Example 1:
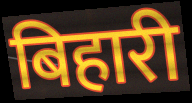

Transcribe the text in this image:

बिहारी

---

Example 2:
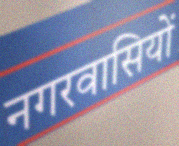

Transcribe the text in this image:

नगरवासियों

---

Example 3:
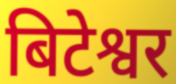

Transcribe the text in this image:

बिटेश्वर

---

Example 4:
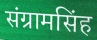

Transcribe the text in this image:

संग्रामसिंह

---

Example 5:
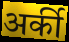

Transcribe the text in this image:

अर्की